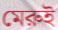
মেরুই